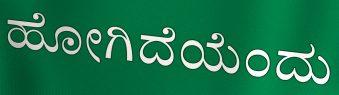
ಹೋಗಿದೆಯೆಂದು